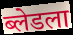
ब्लेडला